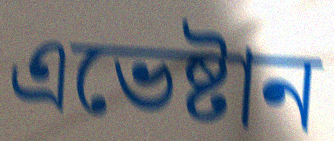
এভেষ্টান